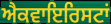
ਐਕਵਾਇਰਿਸਟਾਂ